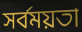
সর্বময়তা